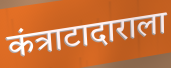
कंत्राटादाराला